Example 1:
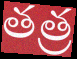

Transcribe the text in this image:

తత్ర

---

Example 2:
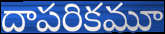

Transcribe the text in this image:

దాపరికమూ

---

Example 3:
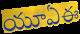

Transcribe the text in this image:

యూఏఈ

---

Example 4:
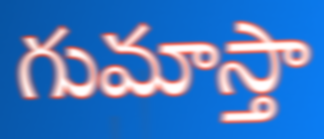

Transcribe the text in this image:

గుమాస్తా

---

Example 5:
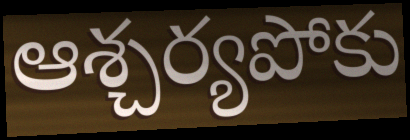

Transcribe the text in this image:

ఆశ్చర్యపోకు